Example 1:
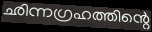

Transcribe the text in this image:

ഛിന്നഗ്രഹത്തിന്റെ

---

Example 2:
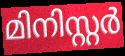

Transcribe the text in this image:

മിനിസ്റ്റർ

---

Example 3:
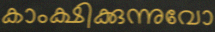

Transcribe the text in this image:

കാംക്ഷിക്കുന്നുവോ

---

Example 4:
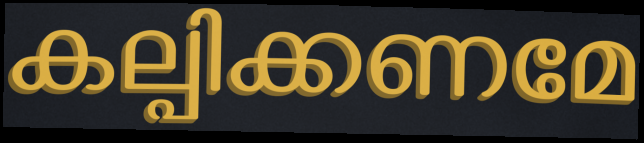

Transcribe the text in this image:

കല്പിക്കണമേ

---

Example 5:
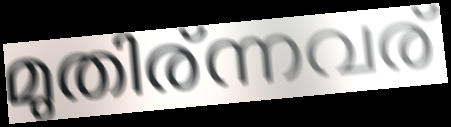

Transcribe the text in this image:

മുതിര്ന്നവര്